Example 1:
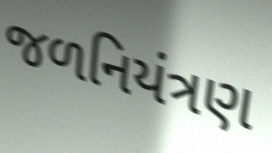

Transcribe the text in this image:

જળનિયંત્રણ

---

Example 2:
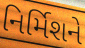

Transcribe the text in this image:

નિર્મિશને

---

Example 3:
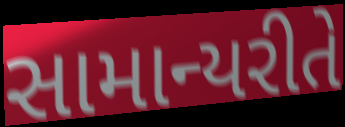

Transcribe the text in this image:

સામાન્યરીતે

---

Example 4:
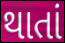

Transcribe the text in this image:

થાતાં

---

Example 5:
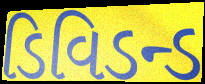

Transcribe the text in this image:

ડિવિડન્ડ